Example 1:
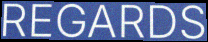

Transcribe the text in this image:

REGARDS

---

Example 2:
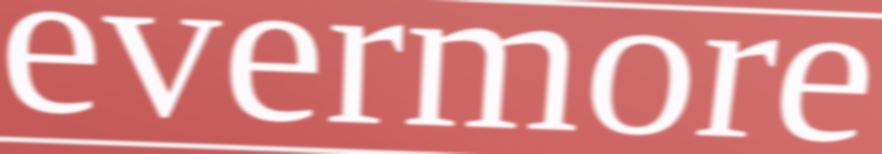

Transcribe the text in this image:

evermore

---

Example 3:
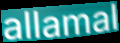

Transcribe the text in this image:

allamal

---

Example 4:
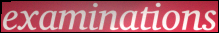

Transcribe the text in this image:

examinations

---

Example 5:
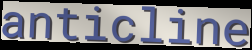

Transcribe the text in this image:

anticline